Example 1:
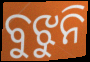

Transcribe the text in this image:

ବୁଝୁନି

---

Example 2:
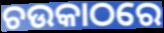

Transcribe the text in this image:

ଚଉକାଠରେ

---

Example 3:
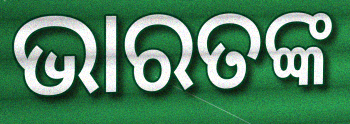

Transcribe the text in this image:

ଭାରତଙ୍କ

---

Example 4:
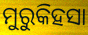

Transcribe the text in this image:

ମୁରୁକିହସା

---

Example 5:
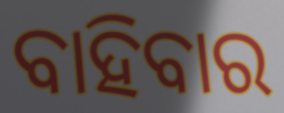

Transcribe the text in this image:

ବାହିବାର